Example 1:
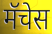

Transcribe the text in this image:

मॅचेस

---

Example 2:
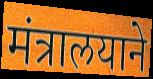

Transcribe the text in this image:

मंत्रालयाने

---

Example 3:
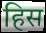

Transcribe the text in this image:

हिस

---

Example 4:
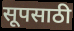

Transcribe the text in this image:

सूपसाठी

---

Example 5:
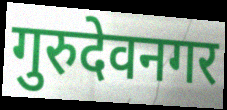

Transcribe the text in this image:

गुरुदेवनगर